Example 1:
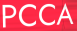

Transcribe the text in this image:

PCCA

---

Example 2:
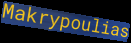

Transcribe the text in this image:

Makrypoulias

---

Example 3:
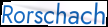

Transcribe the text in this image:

Rorschach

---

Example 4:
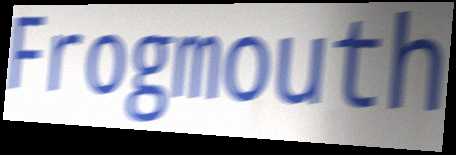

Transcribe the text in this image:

Frogmouth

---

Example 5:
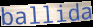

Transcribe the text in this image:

ballida